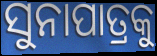
ସୁନାପାତ୍ରକୁ